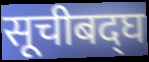
सूचीबद्घ